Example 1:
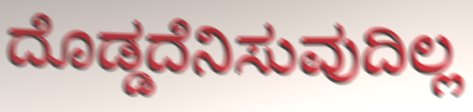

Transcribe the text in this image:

ದೊಡ್ಡದೆನಿಸುವುದಿಲ್ಲ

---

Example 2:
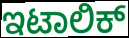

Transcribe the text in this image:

ಇಟಾಲಿಕ್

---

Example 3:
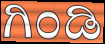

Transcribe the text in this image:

ಗಿಂಡಿ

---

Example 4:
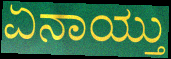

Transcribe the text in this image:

ಏನಾಯ್ತು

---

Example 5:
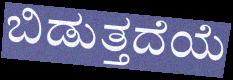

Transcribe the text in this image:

ಬಿಡುತ್ತದೆಯೆ